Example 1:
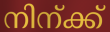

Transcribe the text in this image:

നിന്ക്ക്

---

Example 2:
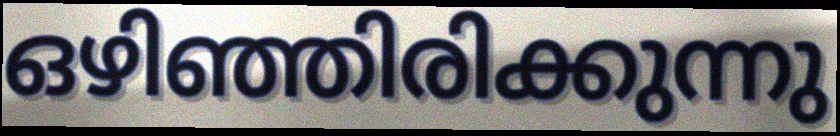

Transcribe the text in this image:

ഒഴിഞ്ഞിരിക്കുന്നു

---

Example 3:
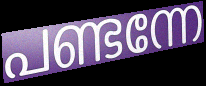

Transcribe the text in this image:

പണ്ടന്നേ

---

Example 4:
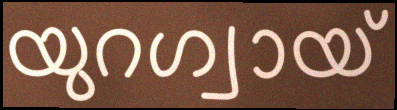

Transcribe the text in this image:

യുറഗ്വായ്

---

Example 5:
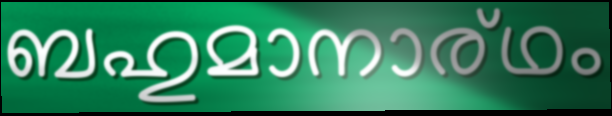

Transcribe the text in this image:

ബഹുമാനാര്ഥം